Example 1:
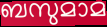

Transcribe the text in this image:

ബസുമാമ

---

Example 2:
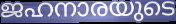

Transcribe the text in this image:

ജഹനാരയുടെ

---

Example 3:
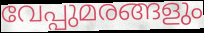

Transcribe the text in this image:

വേപ്പുമരങ്ങളും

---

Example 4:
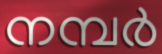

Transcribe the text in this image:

നമ്പർ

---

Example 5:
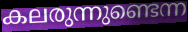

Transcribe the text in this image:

കലരുന്നുണ്ടെന്ന